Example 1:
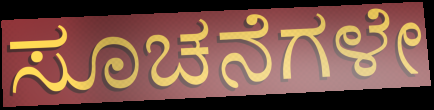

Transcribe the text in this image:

ಸೂಚನೆಗಳೇ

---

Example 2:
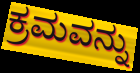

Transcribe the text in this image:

ಕ್ರಮವನ್ನು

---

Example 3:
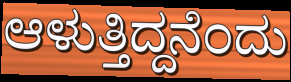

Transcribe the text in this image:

ಆಳುತ್ತಿದ್ದನೆಂದು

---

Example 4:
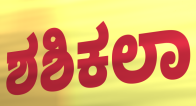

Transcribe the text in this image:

ಶಶಿಕಲಾ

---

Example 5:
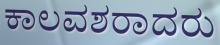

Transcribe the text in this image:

ಕಾಲವಶರಾದರು